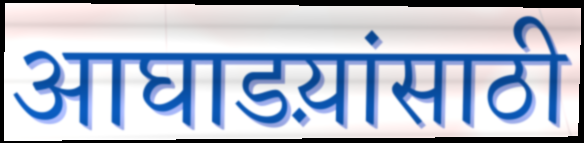
आघाडय़ांसाठी